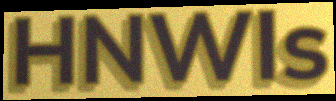
HNWIs